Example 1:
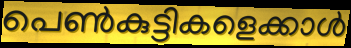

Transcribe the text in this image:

പെൺകുട്ടികളെക്കാൾ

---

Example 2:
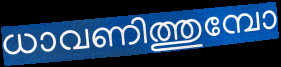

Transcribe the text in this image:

ധാവണിത്തുമ്പോ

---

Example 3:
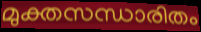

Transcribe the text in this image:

മുക്തസന്ധാരിതം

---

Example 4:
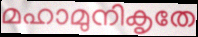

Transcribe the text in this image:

മഹാമുനികൃതേ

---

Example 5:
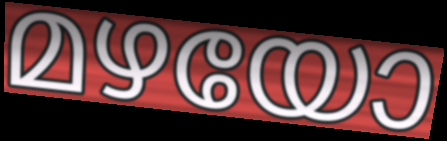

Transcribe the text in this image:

മഴയോ